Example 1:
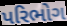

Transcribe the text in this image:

પરિભોગ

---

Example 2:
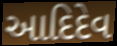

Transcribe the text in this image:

આદિદેવ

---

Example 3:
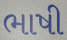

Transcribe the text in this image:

ભાષી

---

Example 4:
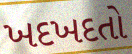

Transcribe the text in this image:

ખદખદતો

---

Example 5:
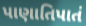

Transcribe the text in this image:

પાણાતિપાતં